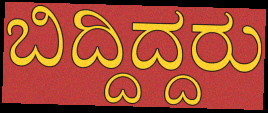
ಬಿದ್ದಿದ್ದರು